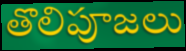
తొలిపూజలు